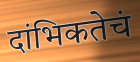
दांभिकतेचं